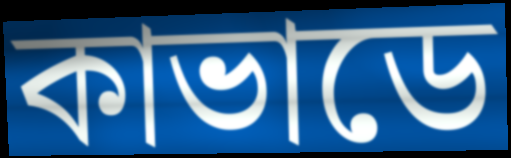
কাভাডে